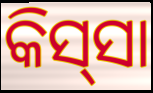
କିସ୍‍ସା